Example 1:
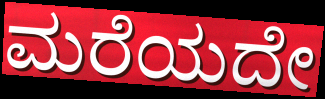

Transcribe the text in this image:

ಮರೆಯದೇ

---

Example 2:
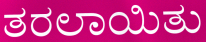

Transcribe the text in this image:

ತರಲಾಯಿತು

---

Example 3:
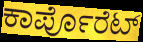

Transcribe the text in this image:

ಕಾರ್ಪೊರೆಟ್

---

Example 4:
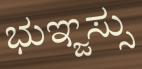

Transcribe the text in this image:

ಭುಞ್ಜಸ್ಸು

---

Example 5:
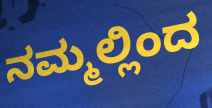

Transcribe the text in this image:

ನಮ್ಮಲ್ಲಿಂದ